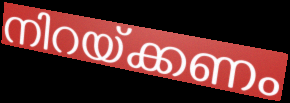
നിറയ്‌ക്കണം